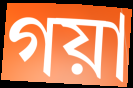
গয়া